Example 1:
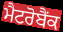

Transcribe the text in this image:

ਮੈਟਰੋਬੈਂਕ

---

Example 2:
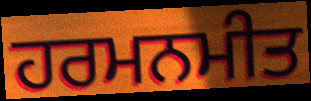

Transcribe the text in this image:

ਹਰਮਨਮੀਤ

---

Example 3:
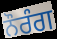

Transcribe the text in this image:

ਨੌਰੰਗ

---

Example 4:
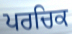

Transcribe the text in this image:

ਪਰਚਿਕ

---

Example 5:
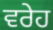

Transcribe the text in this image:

ਵਰੇਹ